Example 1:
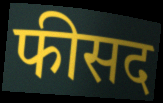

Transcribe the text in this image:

फीसद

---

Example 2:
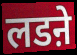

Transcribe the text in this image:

लडऩे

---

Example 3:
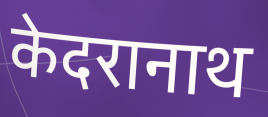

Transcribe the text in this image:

केदरानाथ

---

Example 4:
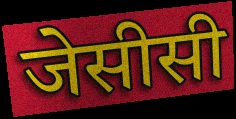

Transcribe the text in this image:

जेसीसी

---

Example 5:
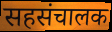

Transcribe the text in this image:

सहसंचालक